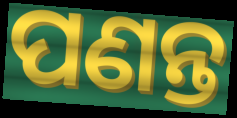
ପଣନ୍ତ